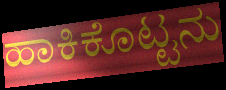
ಹಾಕಿಕೊಟ್ಟನು